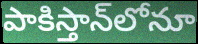
పాకిస్తాన్‌లోనూ